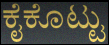
ಕೈಕೊಟ್ಟು